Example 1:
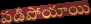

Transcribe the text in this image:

పడిపోయాయి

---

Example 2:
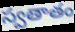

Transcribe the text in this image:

స్వతాతం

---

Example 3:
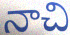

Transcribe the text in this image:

నాచి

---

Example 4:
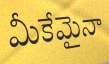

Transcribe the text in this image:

మీకేమైనా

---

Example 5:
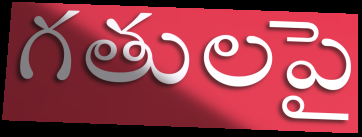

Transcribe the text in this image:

గతులపై